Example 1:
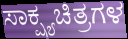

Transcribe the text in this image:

ಸಾಕ್ಷ್ಯಚಿತ್ರಗಳ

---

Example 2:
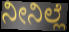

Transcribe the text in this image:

ನೀನಿಲ್ಲೆ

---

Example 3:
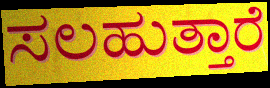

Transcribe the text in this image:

ಸಲಹುತ್ತಾರೆ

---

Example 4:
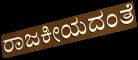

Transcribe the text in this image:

ರಾಜಕೀಯದಂತೆ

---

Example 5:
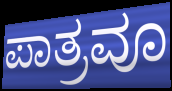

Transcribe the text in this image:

ಪಾತ್ರವೂ